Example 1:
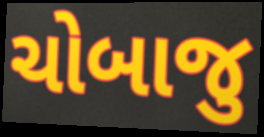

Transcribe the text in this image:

ચોબાજુ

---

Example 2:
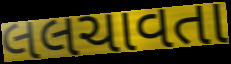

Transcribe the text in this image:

લલચાવતા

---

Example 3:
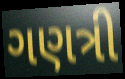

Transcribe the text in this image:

ગણત્રી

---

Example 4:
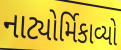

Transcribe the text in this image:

નાટ્યોર્મિકાવ્યો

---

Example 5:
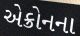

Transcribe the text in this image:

એક્રોનના